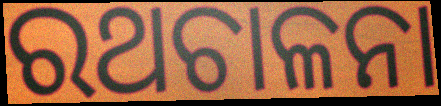
ରଥଚାଳନା